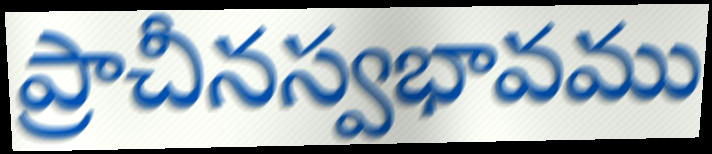
ప్రాచీనస్వభావము